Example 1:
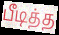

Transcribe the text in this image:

பீடித்த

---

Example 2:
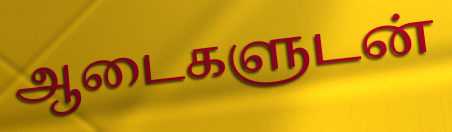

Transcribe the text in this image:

ஆடைகளுடன்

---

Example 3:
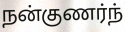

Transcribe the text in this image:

நன்குணர்ந்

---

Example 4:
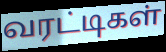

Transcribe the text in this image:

வரட்டிகள்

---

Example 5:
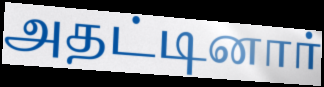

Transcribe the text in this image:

அதட்டினார்